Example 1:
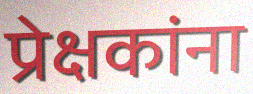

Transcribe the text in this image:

प्रेक्षकांना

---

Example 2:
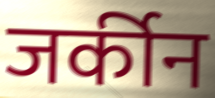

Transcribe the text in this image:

जर्कीन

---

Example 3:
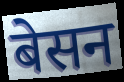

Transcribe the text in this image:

बेसन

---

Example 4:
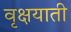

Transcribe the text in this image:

वृक्षयाती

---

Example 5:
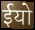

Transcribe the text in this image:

ईयो